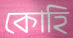
কোহি